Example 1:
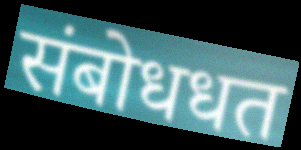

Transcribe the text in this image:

संबोधधत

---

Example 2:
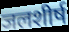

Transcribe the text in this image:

जलशीर्ष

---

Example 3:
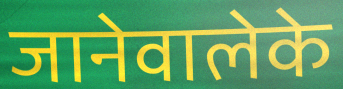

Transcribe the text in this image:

जानेवालेके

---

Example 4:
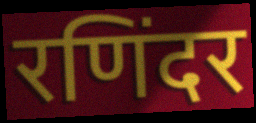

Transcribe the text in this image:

रणिंदर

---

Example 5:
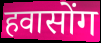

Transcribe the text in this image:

हवासोंग